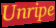
Unripe